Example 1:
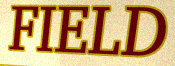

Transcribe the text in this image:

FIELD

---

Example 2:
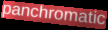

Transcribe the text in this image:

panchromatic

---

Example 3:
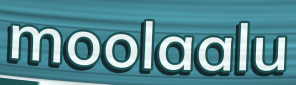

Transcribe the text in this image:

moolaalu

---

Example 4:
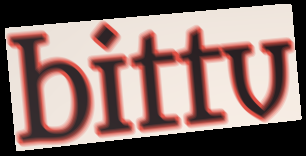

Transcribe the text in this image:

bittu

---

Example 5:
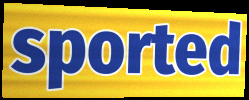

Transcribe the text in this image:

sported